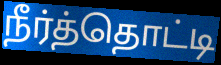
நீர்த்தொட்டி